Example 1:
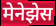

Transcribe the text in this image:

मेनेझेस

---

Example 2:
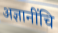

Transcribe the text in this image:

अज्ञानींचि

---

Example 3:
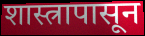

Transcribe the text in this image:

शास्त्रापासून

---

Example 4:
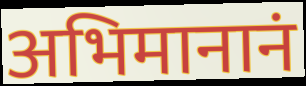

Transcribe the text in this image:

अभिमानानं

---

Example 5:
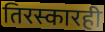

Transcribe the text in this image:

तिरस्कारही